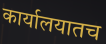
कार्यालयातच